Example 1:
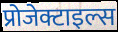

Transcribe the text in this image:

प्रोजेक्टाइल्स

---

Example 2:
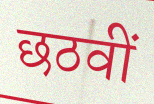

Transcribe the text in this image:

छठवीं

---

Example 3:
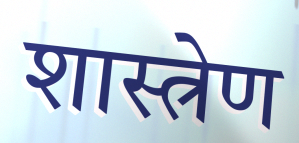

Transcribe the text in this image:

शास्त्रेण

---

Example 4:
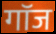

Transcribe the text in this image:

गॉज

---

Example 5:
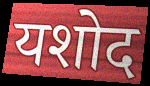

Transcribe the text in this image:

यशोद